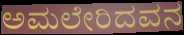
ಅಮಲೇರಿದವನ